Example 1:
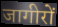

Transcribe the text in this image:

जागीरों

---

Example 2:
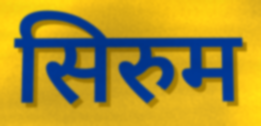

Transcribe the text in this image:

सिरुम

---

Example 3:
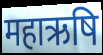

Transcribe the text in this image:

महाऋषि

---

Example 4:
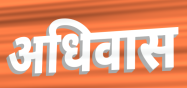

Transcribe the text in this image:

अधिवास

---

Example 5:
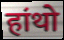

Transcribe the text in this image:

हांथो